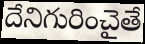
దేనిగురించైతే